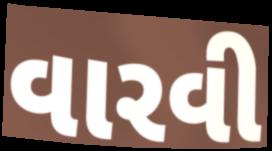
વારવી